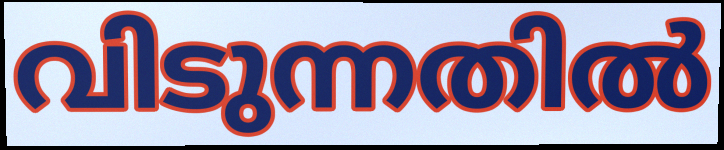
വിടുന്നതിൽ